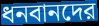
ধনবানদের